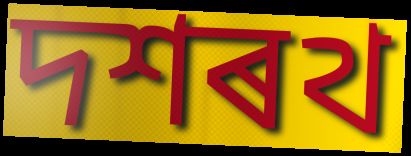
দশৰথ